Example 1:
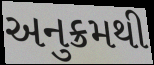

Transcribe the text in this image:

અનુક્રમથી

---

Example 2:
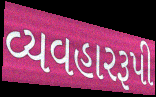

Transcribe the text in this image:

વ્યવહારરૂપી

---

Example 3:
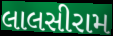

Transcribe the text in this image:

લાલસીરામ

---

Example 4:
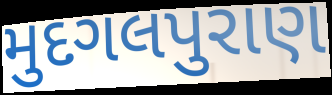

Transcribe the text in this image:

મુદગલપુરાણ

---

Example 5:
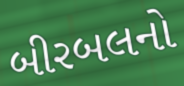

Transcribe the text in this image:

બીરબલનો